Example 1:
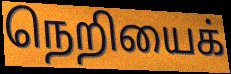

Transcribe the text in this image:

நெறியைக்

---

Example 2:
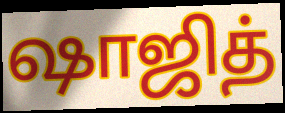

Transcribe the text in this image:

ஷாஜித்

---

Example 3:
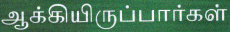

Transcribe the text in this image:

ஆக்கியிருப்பார்கள்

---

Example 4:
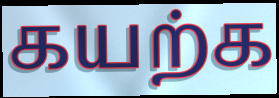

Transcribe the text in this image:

கயற்க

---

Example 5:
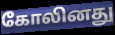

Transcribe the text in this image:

கோலினது